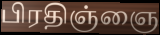
பிரதிஞ்ஞை